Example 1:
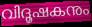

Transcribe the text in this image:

വിദൂഷകനും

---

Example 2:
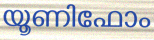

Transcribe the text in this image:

യൂണിഫോം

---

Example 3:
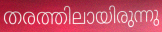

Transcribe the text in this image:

തരത്തിലായിരുന്നു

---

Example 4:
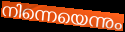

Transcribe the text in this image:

നിന്നെയെന്നും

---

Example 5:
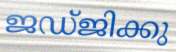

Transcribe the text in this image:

ജഡ്ജിക്കു